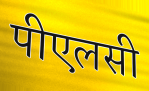
पीएलसी